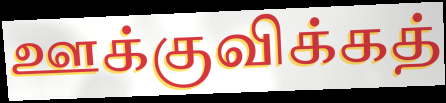
ஊக்குவிக்கத்